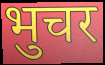
भुचर